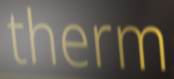
therm